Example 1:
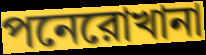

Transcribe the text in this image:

পনেরোখানা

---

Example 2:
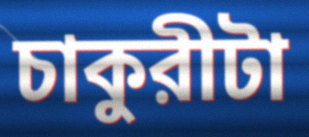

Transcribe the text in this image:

চাকুরীটা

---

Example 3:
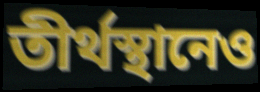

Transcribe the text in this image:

তীর্থস্থানেও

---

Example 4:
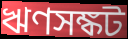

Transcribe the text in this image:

ঋণসঙ্কট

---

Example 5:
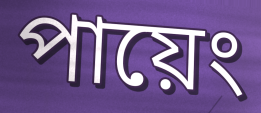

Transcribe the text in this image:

পায়েং